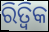
ରିତ୍ୱିକ